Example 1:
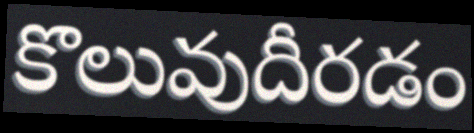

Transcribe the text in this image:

కొలువుదీరడం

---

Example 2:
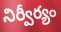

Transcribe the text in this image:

నిర్వీర్యం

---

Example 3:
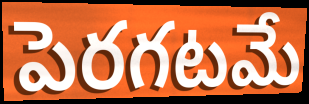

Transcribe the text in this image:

పెరగటమే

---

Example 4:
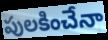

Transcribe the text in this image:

పులకించేనా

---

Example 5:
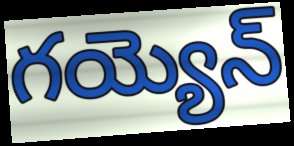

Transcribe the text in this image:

గయ్యెన్